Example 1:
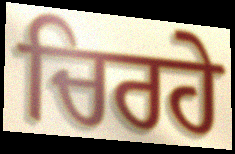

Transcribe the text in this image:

ਚਿਰਹੇ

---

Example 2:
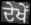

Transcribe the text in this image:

ਦੇਖੇਂ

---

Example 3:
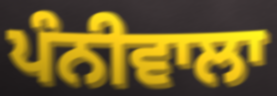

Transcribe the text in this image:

ਪੰਨੀਵਾਲਾ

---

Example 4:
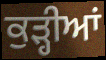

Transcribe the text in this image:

ਕੁੜ੍ਹੀਆਂ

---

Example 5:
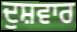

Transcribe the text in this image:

ਦੁਸ਼ਵਾਰ